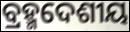
ବ୍ରହ୍ମଦେଶୀୟ